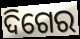
ଦିଗେର